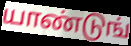
யாண்டுங்